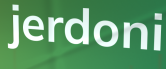
jerdoni